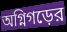
অগ্নিগড়ের